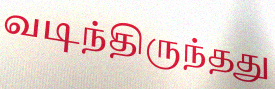
வடிந்திருந்தது